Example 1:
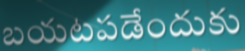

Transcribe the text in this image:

బయటపడేందుకు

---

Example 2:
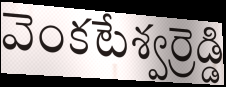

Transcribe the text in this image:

వెంకటేశ్వర్రెడ్డి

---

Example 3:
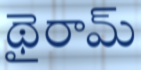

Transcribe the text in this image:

థైరామ్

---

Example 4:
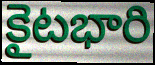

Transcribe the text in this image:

కైటభారి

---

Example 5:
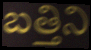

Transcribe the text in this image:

బత్తిని